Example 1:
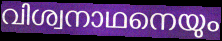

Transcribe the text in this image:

വിശ്വനാഥനെയും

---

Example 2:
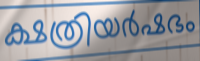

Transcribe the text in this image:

ക്ഷത്രിയർഷഭം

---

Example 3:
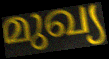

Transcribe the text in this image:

മുഖ്യ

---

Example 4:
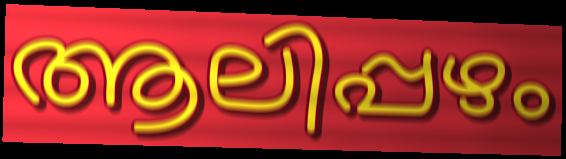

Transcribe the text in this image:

ആലിപ്പഴം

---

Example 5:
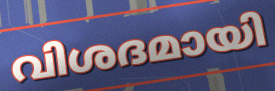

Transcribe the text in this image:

വിശദമായി